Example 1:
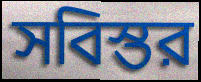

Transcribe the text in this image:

সবিস্তর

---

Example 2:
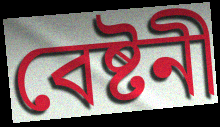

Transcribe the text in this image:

বেষ্টনী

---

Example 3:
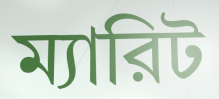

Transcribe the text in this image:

ম্যারিট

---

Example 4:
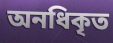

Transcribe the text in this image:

অনধিকৃত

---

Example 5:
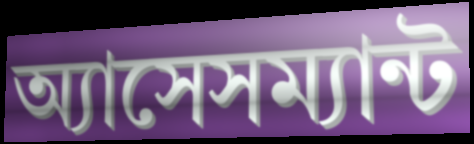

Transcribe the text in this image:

অ্যাসেসম্যান্ট